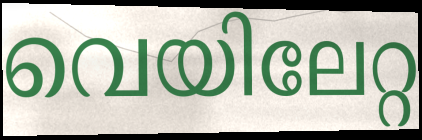
വെയിലേറ്റ